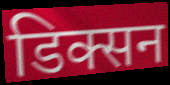
डिक्सन